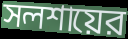
সলশায়ের